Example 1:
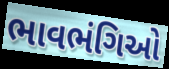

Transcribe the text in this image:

ભાવભંગિઓ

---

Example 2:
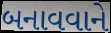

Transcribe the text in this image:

બનાવવાને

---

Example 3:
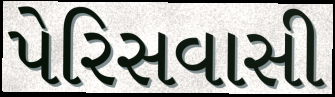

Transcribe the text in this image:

પેરિસવાસી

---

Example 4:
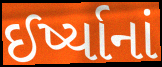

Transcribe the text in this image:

ઈર્ષ્યાનાં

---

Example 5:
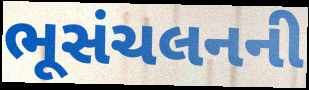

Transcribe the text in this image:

ભૂસંચલનની